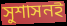
সুশাসনই